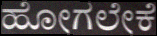
ಹೋಗಲೇಕೆ